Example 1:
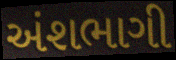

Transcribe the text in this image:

અંશભાગી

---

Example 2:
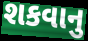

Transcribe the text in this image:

શકવાનુ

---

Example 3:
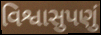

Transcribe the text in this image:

વિશ્વાસુપણું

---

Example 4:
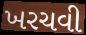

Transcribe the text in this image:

ખરચવી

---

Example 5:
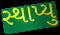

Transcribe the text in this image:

સ્થાપ્યુ